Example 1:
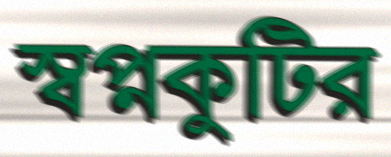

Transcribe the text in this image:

স্বপ্নকুটির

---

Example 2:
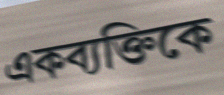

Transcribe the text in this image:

একব্যক্তিকে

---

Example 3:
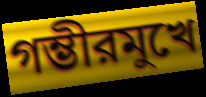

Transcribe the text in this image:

গম্ভীরমুখে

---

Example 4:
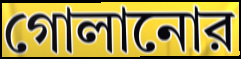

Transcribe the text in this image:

গোলানোর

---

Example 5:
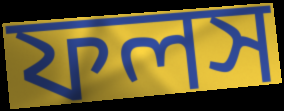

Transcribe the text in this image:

ফলস